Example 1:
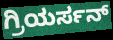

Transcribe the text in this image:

ಗ್ರಿಯರ್ಸನ್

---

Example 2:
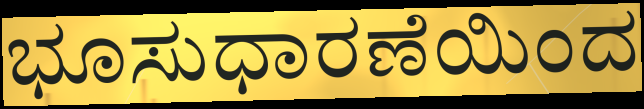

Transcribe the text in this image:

ಭೂಸುಧಾರಣೆಯಿಂದ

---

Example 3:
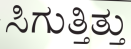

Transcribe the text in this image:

ಸಿಗುತ್ತಿತ್ತು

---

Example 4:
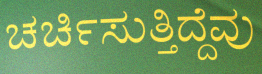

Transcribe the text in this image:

ಚರ್ಚಿಸುತ್ತಿದ್ದೆವು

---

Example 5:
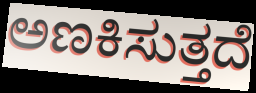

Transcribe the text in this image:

ಅಣಕಿಸುತ್ತದೆ